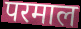
परमाल